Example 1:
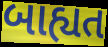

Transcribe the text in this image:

બાહ્યત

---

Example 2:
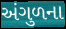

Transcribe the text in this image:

અંગુળના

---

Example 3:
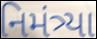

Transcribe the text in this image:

નિમંત્ર્યા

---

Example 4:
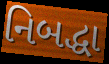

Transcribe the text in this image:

નિબદ્ધા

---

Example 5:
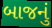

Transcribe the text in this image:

બાજનું